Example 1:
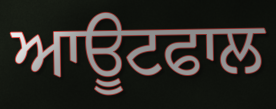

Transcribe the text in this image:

ਆਊਟਫਾਲ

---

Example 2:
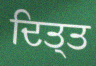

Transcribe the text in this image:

ਦਿਤ੍ਤ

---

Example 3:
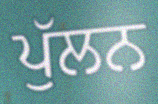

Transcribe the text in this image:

ਪੁੱਲਨ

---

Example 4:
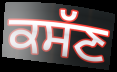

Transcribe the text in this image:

ਕਸੱਣ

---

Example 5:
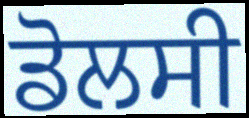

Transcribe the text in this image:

ਡੋਲਸੀ